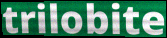
trilobite